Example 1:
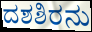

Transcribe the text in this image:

ದಶಶಿರನು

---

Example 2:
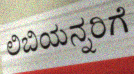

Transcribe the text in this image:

ಲಿಬಿಯನ್ನರಿಗೆ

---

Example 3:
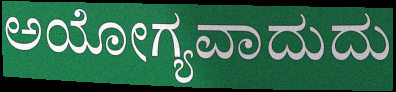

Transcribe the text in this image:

ಅಯೋಗ್ಯವಾದುದು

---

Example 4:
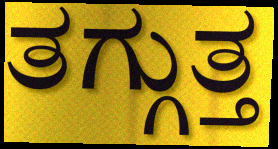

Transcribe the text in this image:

ತಗ್ಗುತ್ತ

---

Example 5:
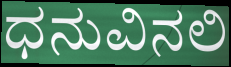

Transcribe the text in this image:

ಧನುವಿನಲಿ